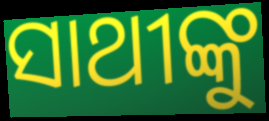
ସାଥୀଙ୍କୁ